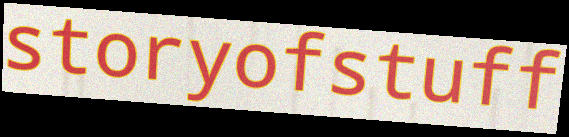
storyofstuff